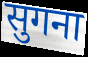
सुगना